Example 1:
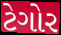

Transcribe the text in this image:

ટેગોર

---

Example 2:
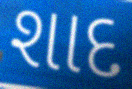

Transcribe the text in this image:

શાદ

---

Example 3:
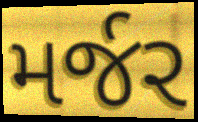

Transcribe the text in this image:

મર્જર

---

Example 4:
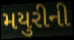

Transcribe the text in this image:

મયુરીની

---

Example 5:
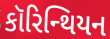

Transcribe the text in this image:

કૉરિન્થિયન